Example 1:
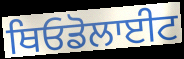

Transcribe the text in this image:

ਥਿਓਡੋਲਾਈਟ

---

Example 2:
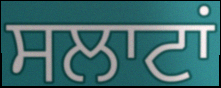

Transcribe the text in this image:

ਸਲਾਟਾਂ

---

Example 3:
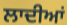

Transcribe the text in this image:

ਲਾਦੀਆਂ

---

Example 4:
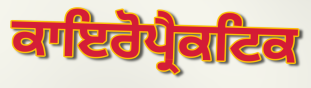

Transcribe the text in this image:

ਕਾਇਰੋਪ੍ਰੈਕਟਿਕ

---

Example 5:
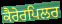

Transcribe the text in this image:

ਕੈਰੇਰਪਿਲਰ